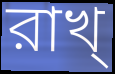
রাখ্